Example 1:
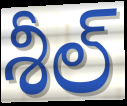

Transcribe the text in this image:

శీల్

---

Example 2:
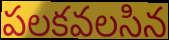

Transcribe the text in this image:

పలకవలసిన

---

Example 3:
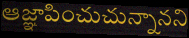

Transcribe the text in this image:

ఆజ్ఞాపించుచున్నానని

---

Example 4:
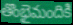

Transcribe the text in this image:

తొంభైమందికి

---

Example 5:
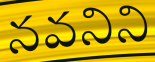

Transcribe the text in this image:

నవనిని